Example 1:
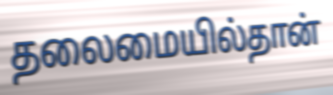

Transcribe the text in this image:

தலைமையில்தான்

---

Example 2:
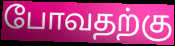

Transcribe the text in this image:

போவதற்கு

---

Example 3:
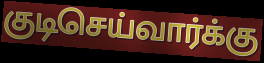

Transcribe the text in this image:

குடிசெய்வார்க்கு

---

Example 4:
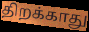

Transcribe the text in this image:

திறக்காது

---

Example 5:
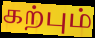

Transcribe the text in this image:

கற்பும்